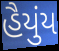
હૈયુંય